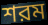
শরম